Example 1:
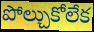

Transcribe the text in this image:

పోల్చుకోలేక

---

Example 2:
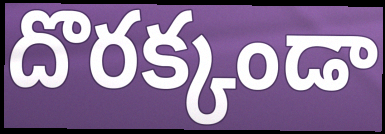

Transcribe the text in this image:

దొరక్కండా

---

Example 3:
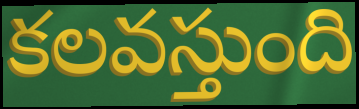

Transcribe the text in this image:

కలవస్తుంది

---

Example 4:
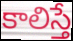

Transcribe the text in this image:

కాలిస్తే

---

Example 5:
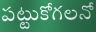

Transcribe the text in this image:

పట్టుకోగలనో